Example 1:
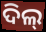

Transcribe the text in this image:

ଦିଲ୍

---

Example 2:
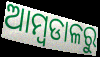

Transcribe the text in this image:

ଆମ୍ବଡାଳରୁ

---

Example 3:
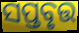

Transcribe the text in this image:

ସପ୍ତବୃତ୍ତ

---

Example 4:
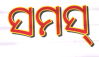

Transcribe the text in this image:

ସମସ୍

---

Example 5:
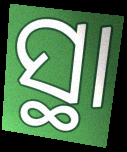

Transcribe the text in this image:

ସ୍ଥା